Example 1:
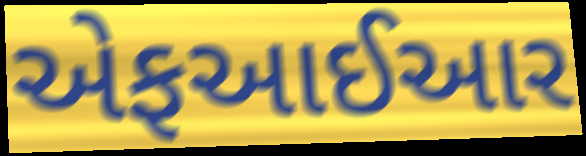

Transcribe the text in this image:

એફઆઈઆર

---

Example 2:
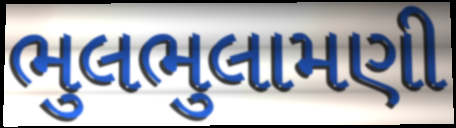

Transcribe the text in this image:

ભુલભુલામણી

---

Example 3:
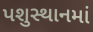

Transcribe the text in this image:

પશુસ્થાનમાં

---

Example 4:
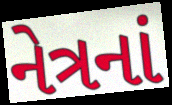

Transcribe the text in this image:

નેત્રનાં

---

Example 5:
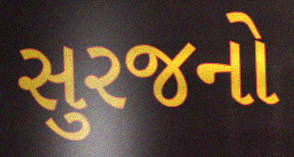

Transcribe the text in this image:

સુરજનો